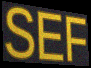
SEF